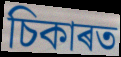
চিকাৰত